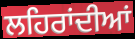
ਲਹਿਰਾਂਦੀਆਂ